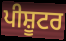
ਪੀਸ਼ੂਟਰ